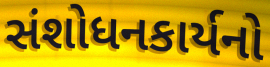
સંશોધનકાર્યનો